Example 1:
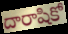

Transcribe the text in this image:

దారాషికో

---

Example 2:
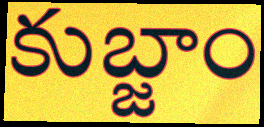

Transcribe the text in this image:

కుబ్జాం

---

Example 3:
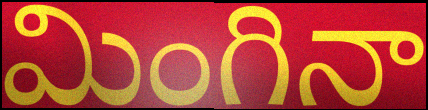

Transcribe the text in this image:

మింగినా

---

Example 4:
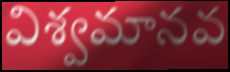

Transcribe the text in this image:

విశ్వమానవ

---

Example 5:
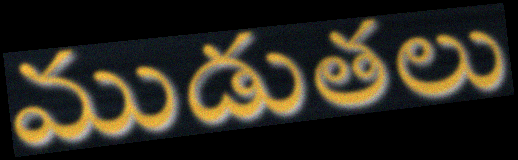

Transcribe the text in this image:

ముడుతలు